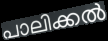
പാലിക്കൽ